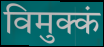
विमुक्कं